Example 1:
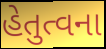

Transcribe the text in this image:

હેતુત્વના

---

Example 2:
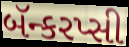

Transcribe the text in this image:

બૅન્કરપ્સી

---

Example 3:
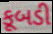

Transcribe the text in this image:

કૂબડી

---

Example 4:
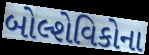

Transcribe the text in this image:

બોલ્શેવિકોના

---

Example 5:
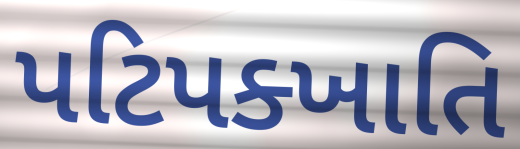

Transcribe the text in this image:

પટિપક્ખાતિ